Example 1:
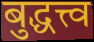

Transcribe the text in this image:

बुद्धत्त्व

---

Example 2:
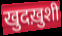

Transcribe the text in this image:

खुदख़ुशी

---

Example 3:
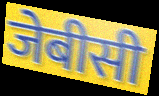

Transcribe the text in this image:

जेबीसी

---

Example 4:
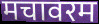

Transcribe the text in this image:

मचावरम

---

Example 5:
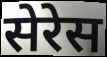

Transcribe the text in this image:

सेरेस